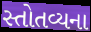
સ્તોતવ્યના